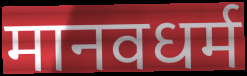
मानवधर्म